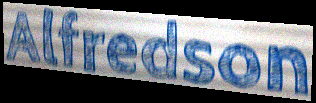
Alfredson